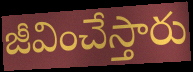
జీవించేస్తారు